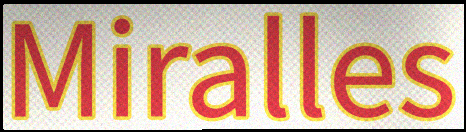
Miralles